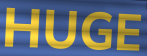
HUGE